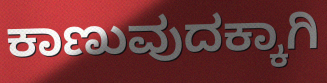
ಕಾಣುವುದಕ್ಕಾಗಿ